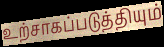
உற்சாகப்படுத்தியும்